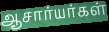
ஆசார்யர்கள்